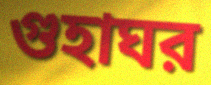
গুহাঘর